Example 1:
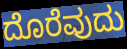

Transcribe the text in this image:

ದೊರೆವುದು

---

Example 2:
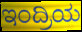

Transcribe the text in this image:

ಇಂದ್ರಿಯ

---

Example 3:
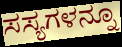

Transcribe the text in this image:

ಸಸ್ಯಗಳನ್ನೂ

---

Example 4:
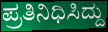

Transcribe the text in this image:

ಪ್ರತಿನಿಧಿಸಿದ್ದು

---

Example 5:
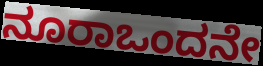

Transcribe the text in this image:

ನೂರಾಒಂದನೇ